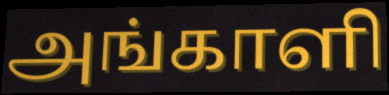
அங்காளி